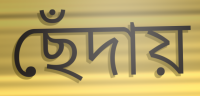
ছেঁদায়